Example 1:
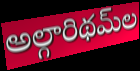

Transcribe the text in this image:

అల్గారిథమ్‌ల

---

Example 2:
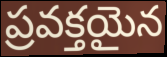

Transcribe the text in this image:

ప్రవక్తయైన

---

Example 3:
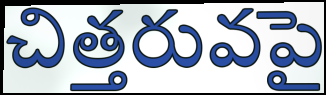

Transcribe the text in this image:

చిత్తరువపై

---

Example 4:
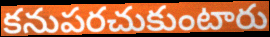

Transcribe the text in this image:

కనుపరచుకుంటారు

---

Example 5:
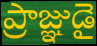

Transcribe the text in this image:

ప్రాజ్ఞుడై